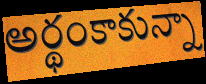
అర్థంకాకున్నా